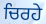
ਚਿਰਹੇ